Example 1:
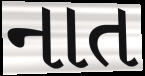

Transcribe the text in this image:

નાત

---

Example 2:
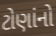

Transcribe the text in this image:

ટોણાંનો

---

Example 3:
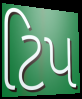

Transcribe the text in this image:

ટિપ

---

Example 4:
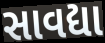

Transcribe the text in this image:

સાવદ્યા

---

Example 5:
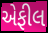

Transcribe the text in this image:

એફીલ